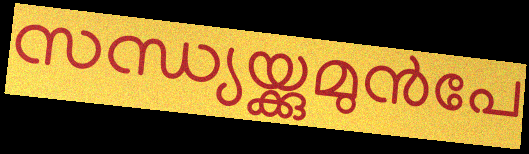
സന്ധ്യയ്ക്കുമുൻപേ